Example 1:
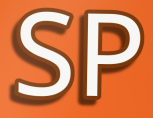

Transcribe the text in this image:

SP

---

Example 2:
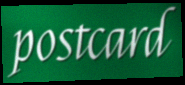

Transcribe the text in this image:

postcard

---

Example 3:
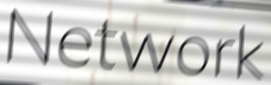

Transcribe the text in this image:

Network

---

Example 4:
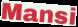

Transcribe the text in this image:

Mansi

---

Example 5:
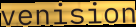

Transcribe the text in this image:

venision